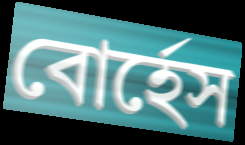
বোর্হেস